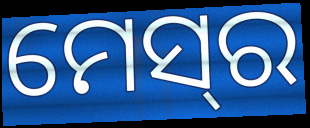
ମେସ୍‌ର